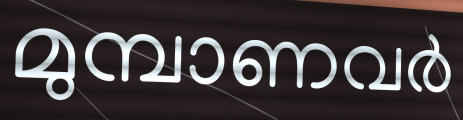
മുമ്പാണവർ